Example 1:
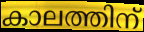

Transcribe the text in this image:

കാലത്തിന്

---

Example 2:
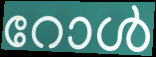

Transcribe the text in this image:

റോൾ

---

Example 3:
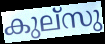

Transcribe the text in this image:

കുല്സു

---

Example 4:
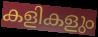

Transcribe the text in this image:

കളികളും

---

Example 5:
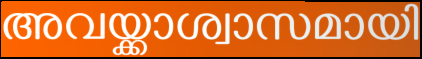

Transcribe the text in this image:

അവയ്ക്കാശ്വാസമായി